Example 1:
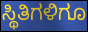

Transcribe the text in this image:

ಸ್ಥಿತಿಗಳಿಗೂ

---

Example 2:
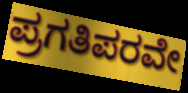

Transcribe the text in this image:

ಪ್ರಗತಿಪರವೇ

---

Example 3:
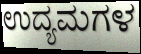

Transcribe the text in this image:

ಉದ್ಯಮಗಳ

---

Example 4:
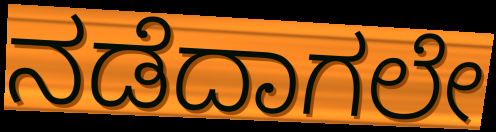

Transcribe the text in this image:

ನಡೆದಾಗಲೇ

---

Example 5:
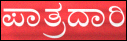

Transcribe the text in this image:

ಪಾತ್ರದಾರಿ